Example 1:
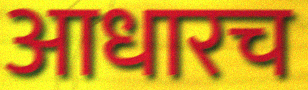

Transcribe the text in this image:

आधारच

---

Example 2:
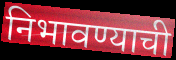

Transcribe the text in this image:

निभावण्याची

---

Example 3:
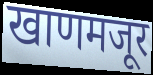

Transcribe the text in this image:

खाणमजूर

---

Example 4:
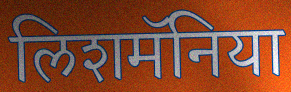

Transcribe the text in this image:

लिशमॅनिया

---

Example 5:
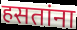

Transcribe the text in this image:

हसतांना